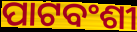
ପାଟବଂଶୀ